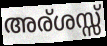
അര്ശസ്സ്